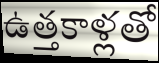
ఉత్తకాళ్లతో